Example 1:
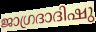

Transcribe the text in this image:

ജാഗ്രദാദിഷു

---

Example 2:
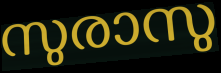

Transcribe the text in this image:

സുരാസു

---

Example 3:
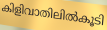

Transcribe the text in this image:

കിളിവാതിലിൽകൂടി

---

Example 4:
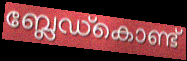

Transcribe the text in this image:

ബ്ലേഡ്കൊണ്ട്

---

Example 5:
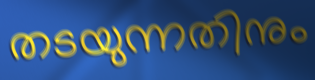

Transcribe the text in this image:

തടയുന്നതിനും